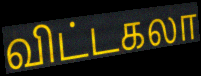
விட்டகலா